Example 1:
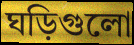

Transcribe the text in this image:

ঘড়িগুলো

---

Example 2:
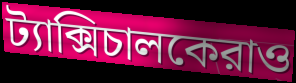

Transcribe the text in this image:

ট্যাক্সিচালকেরাও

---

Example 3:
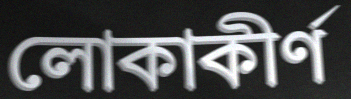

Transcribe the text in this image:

লোকাকীর্ণ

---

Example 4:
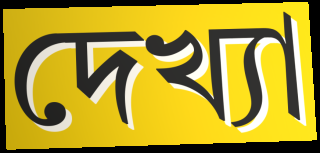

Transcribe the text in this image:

দেখ্যা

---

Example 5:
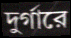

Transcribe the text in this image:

দুর্গারে